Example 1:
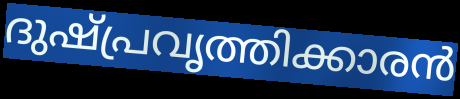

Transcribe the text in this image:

ദുഷ്പ്രവൃത്തിക്കാരൻ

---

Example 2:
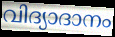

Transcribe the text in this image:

വിദ്യാദാനം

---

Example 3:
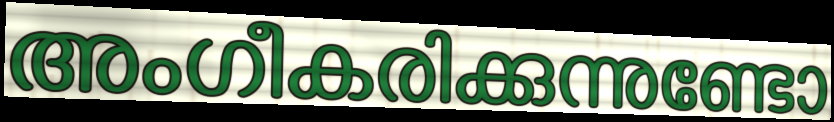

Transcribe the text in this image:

അംഗീകരിക്കുന്നുണ്ടോ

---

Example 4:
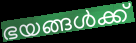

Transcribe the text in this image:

ഭയങ്ങൾക്ക്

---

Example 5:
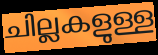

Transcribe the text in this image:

ചില്ലകളുള്ള